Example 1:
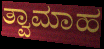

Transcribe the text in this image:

ತ್ವಾಮಾಹ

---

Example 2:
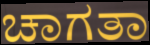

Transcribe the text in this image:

ಚಾಗತಾ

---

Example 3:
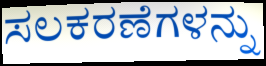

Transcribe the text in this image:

ಸಲಕರಣೆಗಳನ್ನು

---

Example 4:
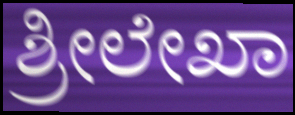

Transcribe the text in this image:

ಶ್ರೀಲೇಖಾ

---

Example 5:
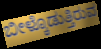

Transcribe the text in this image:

ಬೀಳ್ಕೊಡುತ್ತಿರುವ